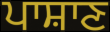
ਪਾਸ਼ਾਣ